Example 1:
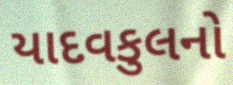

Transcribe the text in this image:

યાદવકુલનો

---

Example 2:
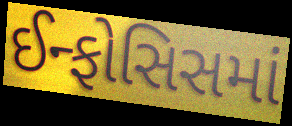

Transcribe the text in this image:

ઈન્ફોસિસમાં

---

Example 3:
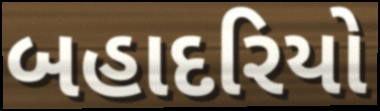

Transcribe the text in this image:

બહાદરિયો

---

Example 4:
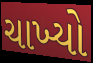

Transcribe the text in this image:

ચાખ્યો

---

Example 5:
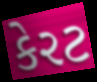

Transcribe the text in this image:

કેરટ